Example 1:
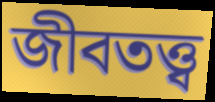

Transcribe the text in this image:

জীবতত্ত্ব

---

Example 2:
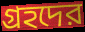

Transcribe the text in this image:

গ্রহদের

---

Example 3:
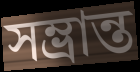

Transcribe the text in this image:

সম্ভ্রান্ত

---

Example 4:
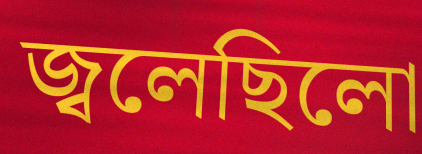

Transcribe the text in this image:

জ্বলেছিলো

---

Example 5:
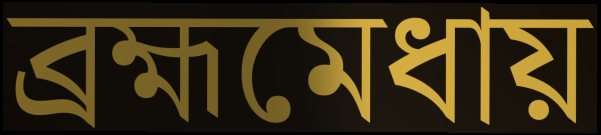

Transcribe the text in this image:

ব্রহ্মমেধায়